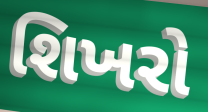
શિખરો